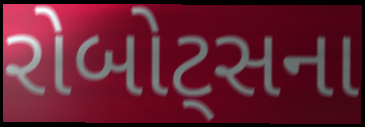
રોબોટ્સના